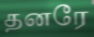
தனரே